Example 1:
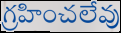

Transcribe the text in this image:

గ్రహించలేవు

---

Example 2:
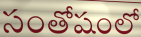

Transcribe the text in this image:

సంతోషంలో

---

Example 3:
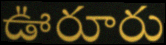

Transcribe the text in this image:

ఊరూరు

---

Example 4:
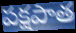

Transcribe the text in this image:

పక్షపాత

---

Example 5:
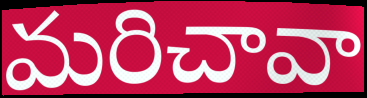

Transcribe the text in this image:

మరిచావా